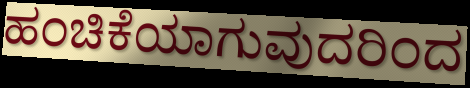
ಹಂಚಿಕೆಯಾಗುವುದರಿಂದ